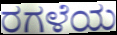
ರಗಳೆಯ